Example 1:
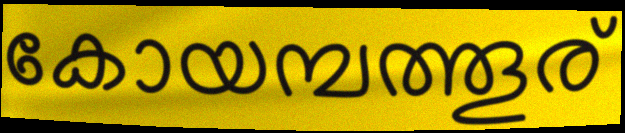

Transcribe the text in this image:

കോയമ്പത്തൂര്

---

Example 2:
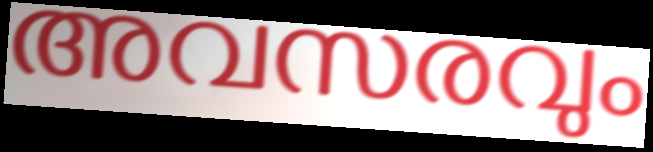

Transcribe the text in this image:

അവസരവും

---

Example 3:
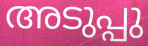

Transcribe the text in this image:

അടുപ്പു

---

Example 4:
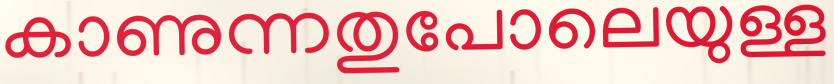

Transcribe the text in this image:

കാണുന്നതുപോലെയുള്ള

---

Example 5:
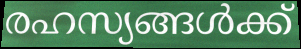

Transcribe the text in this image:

രഹസ്യങ്ങൾക്ക്